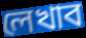
লেখাব